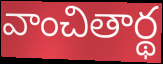
వాంచితార్థ